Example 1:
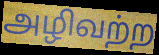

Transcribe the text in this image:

அழிவற்ற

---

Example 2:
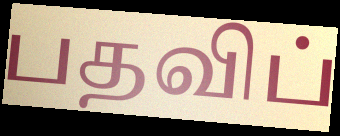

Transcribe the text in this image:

பதவிப்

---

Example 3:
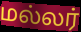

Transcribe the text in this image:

மல்லர்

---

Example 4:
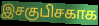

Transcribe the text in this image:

இசகுபிசகாக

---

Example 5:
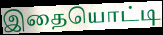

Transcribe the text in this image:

இதையொட்டி